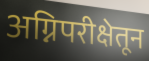
अग्निपरीक्षेतून